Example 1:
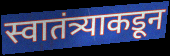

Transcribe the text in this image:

स्वातंत्र्याकडून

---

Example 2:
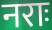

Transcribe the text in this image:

नराः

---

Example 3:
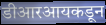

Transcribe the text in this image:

डीआरआयकडून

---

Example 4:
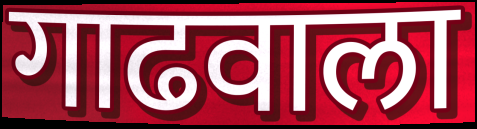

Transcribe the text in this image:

गाढवाला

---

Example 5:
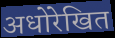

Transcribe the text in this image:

अधोरेखित